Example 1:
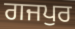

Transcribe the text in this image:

ਗਜਪੁਰ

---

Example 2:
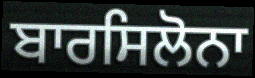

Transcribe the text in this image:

ਬਾਰਸਿਲੋਨਾ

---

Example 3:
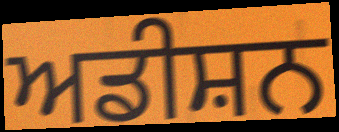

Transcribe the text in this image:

ਅਡੀਸ਼ਨ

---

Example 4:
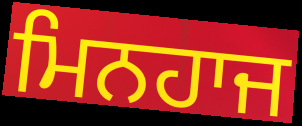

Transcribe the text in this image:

ਮਿਨਹਾਜ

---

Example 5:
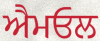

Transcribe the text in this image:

ਐਮਓਲ